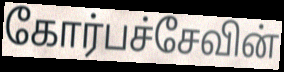
கோர்பச்சேவின்